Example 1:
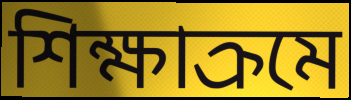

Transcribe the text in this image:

শিক্ষাক্রমে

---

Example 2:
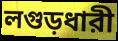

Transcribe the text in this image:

লগুড়ধারী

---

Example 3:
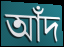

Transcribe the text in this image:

আঁদ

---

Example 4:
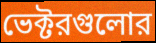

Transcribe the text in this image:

ভেক্টরগুলোর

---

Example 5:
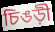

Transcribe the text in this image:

চিঙড়ী